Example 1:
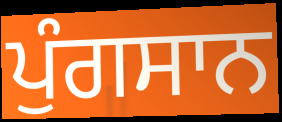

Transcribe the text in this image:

ਪੁੰਗਸਾਨ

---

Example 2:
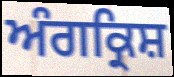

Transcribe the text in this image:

ਅੰਗਕ੍ਰਿਸ਼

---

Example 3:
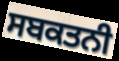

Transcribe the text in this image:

ਸਬਕਤਨੀ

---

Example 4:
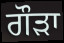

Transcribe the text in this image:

ਗੌੜਾ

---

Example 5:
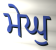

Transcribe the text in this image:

ਮੇਘੁ